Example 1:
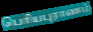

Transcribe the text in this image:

பெரியபுராணம்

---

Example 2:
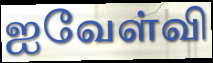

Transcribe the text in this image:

ஐவேள்வி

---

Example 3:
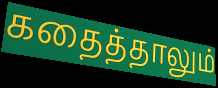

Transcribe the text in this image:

கதைத்தாலும்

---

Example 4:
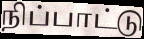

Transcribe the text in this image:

நிப்பாட்டு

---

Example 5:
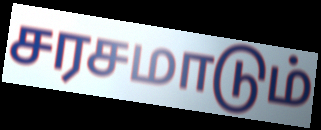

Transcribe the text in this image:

சரசமாடும்